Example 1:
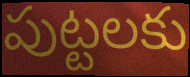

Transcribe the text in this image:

పుట్టలకు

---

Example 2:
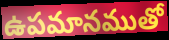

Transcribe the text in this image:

ఉపమానముతో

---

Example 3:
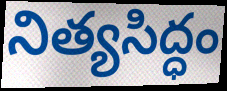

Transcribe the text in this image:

నిత్యసిద్ధం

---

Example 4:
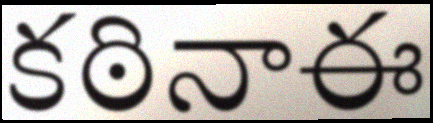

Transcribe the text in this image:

కఠినాఈ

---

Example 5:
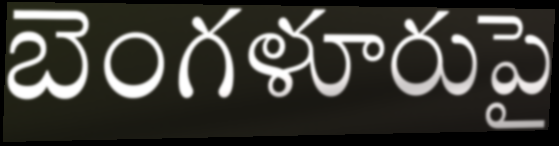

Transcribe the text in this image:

బెంగళూరుపై